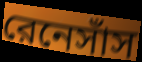
রেনেসাঁস